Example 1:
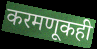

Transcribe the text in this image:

करमणूकही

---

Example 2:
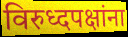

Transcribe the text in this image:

विरुध्दपक्षांना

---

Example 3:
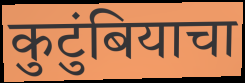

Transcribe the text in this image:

कुटुंबियाचा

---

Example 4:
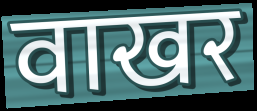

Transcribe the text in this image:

वाखर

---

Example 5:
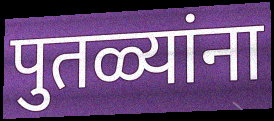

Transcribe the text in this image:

पुतळ्यांना